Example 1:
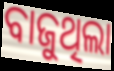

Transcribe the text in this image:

ବାଜୁଥିଲା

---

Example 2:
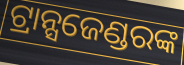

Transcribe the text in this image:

ଟ୍ରାନ୍ସଜେଣ୍ଡରଙ୍କ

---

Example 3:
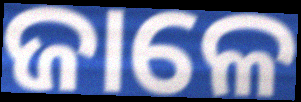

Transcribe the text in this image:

ଜାଳେ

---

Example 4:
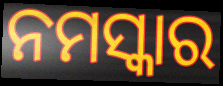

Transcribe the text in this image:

ନମସ୍କାର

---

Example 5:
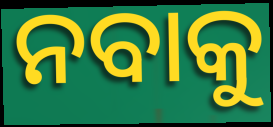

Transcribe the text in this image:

ନବାକୁ